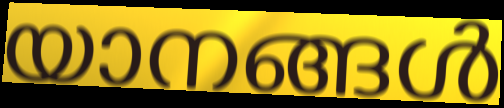
യാനങ്ങൾ